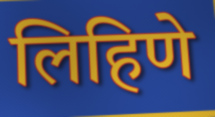
लिहिणे